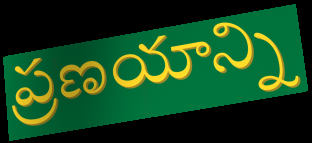
ప్రణయాన్ని